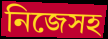
নিজেসহ